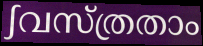
ഽവസ്ത്രതാം